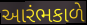
આરંભકાળે